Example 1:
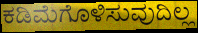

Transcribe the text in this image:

ಕಡಿಮೆಗೊಳಿಸುವುದಿಲ್ಲ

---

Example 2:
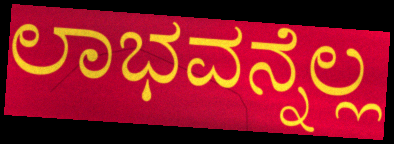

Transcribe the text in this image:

ಲಾಭವನ್ನೆಲ್ಲ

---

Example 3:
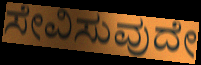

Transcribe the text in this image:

ಸೇವಿಸುವುದೇ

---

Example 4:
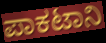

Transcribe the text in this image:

ಪಾಕಟಾನಿ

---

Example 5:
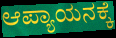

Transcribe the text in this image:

ಆಪ್ಯಾಯನಕ್ಕೆ